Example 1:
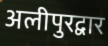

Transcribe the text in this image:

अलीपुरद्वार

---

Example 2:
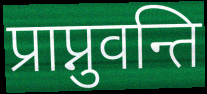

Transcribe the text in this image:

प्राप्नुवन्ति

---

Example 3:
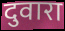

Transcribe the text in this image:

दुवारा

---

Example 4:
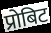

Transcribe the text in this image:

प्रोबिट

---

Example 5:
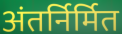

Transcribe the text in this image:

अंतर्निर्मित